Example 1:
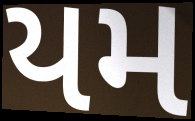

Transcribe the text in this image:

યમ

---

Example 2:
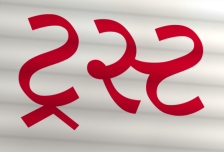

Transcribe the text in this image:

ટ્રસ્ટ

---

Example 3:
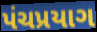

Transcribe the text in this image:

પંચપ્રયાગ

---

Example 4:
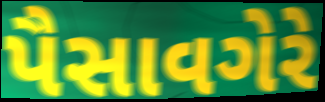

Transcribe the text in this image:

પૈસાવગેરે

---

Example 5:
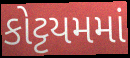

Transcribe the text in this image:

કોટ્ટયમમાં